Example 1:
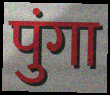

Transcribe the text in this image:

पुंगा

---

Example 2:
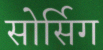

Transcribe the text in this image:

सोर्सिग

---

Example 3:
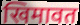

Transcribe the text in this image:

खिमावत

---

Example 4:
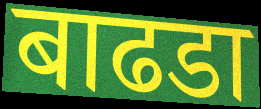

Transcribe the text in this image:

बाढडा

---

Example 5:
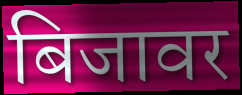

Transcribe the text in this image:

बिजावर